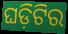
ଘଡ଼ିଟିର